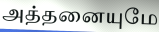
அத்தனையுமே